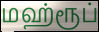
மஹ்ரூப்